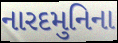
નારદમુનિના